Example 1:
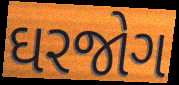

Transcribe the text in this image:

ઘરજોગ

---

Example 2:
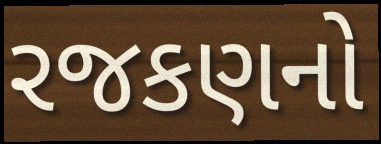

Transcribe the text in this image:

રજકણનો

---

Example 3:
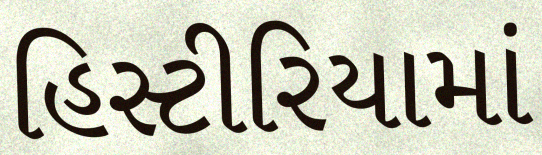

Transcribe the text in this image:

હિસ્ટીરિયામાં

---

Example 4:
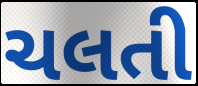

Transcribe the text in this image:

ચલતી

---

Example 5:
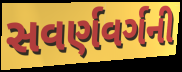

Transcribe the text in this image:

સવર્ણવર્ગની